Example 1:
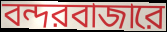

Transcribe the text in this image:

বন্দরবাজারে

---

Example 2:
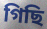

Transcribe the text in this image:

গিছি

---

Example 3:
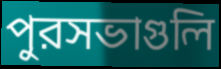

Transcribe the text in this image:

পুরসভাগুলি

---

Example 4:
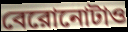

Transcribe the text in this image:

বেরোনোটাও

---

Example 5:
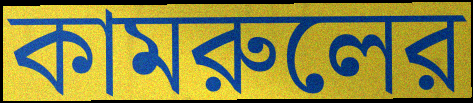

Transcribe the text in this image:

কামরুলের